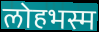
लोहभस्म